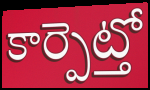
కార్పెట్తో